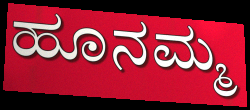
ಹೂನಮ್ಮ